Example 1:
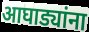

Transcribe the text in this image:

आघाड्यांना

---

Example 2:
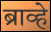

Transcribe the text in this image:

ब्राव्हे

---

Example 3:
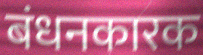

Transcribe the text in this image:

बंधनकारक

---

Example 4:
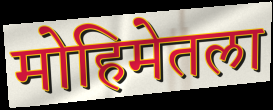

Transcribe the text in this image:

मोहिमेतला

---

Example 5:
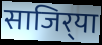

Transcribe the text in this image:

साजिर्‍या